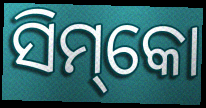
ସିମ୍‌କୋ